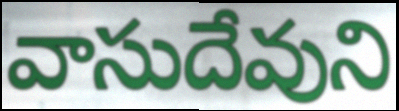
వాసుదేవుని